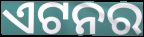
ଏଟନର